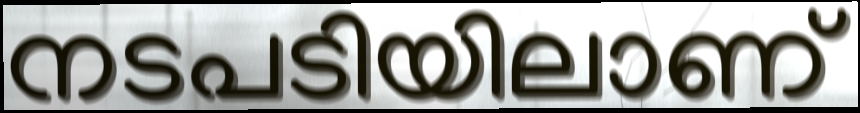
നടപടിയിലാണ്